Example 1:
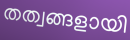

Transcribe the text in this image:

തത്വങ്ങളായി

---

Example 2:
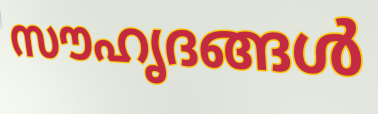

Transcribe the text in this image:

സൗഹൃദങ്ങൾ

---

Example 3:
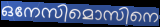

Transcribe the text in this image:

ഒനേസിമൊസിനെ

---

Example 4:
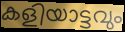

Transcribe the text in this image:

കളിയാട്ടവും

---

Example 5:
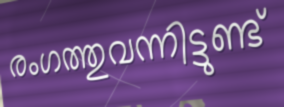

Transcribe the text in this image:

രംഗത്തുവന്നിട്ടുണ്ട്